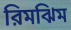
রিমঝিম